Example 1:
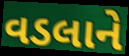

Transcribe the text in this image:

વડલાને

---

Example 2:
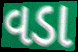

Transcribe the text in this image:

વડા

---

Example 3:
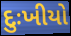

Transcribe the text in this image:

દુઃખીયો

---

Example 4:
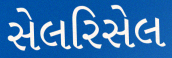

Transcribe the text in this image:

સેલરિસેલ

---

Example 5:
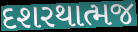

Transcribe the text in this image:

દશરથાત્મજ